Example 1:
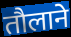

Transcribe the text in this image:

तौलाने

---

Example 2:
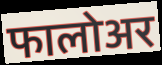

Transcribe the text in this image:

फालोअर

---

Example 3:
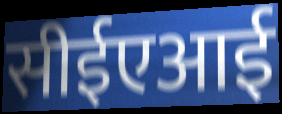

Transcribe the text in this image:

सीईएआई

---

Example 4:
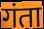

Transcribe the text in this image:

गंता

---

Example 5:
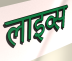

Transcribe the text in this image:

लाइव्स